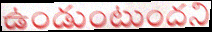
ఉండుంటుందని